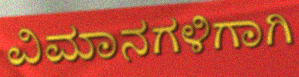
ವಿಮಾನಗಳಿಗಾಗಿ